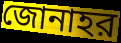
জোনাহর